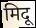
मिदू